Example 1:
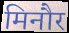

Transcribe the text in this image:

मिनौर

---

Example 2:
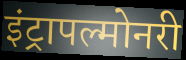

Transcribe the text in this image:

इंट्रापल्मोनरी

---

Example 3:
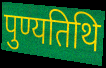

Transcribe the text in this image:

पुण्यतिथि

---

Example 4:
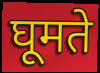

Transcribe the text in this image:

घूमते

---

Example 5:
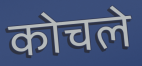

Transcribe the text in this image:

कोचले